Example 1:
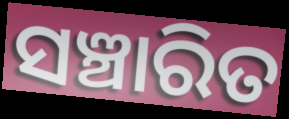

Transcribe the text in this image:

ସଞ୍ଚାରିତ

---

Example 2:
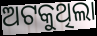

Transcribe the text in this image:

ଅଟକୁଥିଲା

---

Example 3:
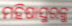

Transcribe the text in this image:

ମହିଷାସୁରକୁ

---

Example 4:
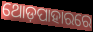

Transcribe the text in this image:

ଥୋଡ଼ପାହାରରେ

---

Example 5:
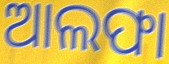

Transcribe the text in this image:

ଆଲଫା